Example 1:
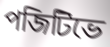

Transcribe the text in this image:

পজিটিভে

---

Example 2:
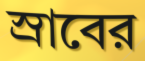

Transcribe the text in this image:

স্রাবের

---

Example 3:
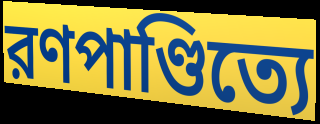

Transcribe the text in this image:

রণপাণ্ডিত্যে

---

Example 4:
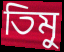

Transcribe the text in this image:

তিমু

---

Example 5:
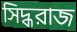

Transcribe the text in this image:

সিদ্ধরাজ